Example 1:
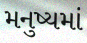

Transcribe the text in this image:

મનુષ્યમાં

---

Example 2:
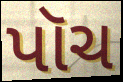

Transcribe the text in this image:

પૉચ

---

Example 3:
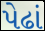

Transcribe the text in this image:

પેઢાં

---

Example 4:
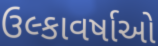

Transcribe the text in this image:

ઉલ્કાવર્ષાઓ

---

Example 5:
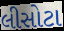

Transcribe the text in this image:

લીસોટા